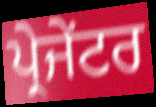
ਪ੍ਰੇਜੇਂਟਰ